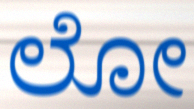
ಲೋ